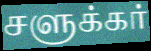
சளுக்கர்